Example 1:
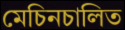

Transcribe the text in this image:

মেচিনচালিত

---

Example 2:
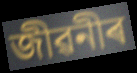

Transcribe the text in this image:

জীৱনীৰ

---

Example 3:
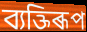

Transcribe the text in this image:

ব্যক্তিৰূপ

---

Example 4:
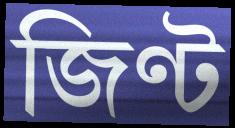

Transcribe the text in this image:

জিণ্ট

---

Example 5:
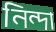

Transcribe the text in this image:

নিন্দা